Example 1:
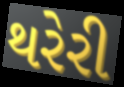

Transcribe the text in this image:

થરેરી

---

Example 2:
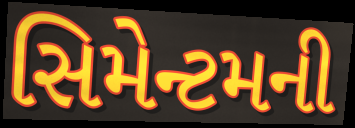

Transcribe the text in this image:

સિમેન્ટમની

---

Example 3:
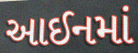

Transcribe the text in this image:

આઈનમાં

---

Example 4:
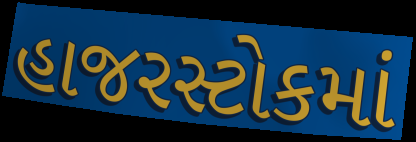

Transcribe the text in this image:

હાજરસ્ટોકમાં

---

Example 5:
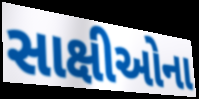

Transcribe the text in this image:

સાક્ષીઓના